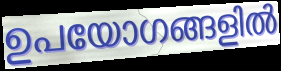
ഉപയോഗങ്ങളിൽ